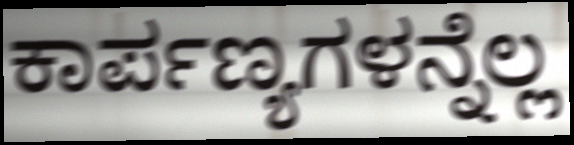
ಕಾರ್ಪಣ್ಯಗಳನ್ನೆಲ್ಲ